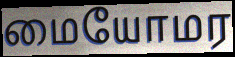
மையோமர